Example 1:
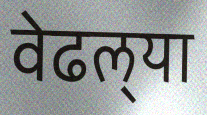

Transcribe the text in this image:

वेढल्या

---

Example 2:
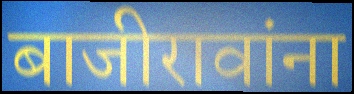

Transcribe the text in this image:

बाजीरावांना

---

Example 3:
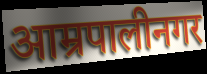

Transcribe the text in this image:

आम्रपालीनगर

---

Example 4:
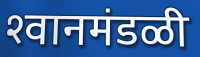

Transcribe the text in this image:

श्वानमंडळी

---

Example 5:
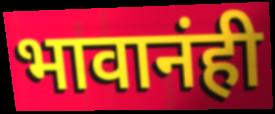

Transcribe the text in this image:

भावानंही